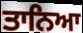
ਤਾਨਿਆ